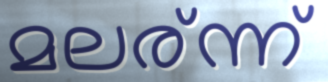
മലര്ന്ന്